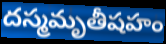
దస్మమృతీషహం